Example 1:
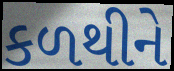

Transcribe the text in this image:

કળથીને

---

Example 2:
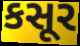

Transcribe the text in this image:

કસૂર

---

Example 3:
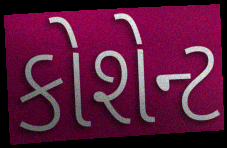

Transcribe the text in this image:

કોશેન્ટ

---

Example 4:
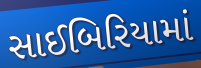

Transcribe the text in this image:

સાઈબિરિયામાં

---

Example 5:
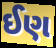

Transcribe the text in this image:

ઈણ